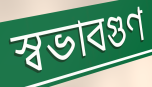
স্বভাবগুণ